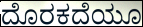
ದೊರಕದೆಯೂ